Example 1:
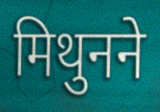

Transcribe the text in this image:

मिथुनने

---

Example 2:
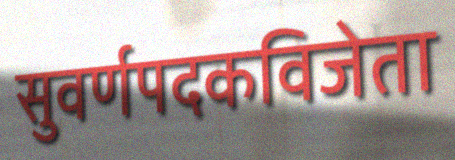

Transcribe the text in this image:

सुवर्णपदकविजेता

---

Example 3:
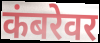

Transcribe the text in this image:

कंबरेवर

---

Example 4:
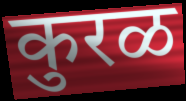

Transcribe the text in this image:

कुरळ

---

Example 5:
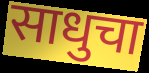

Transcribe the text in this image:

साधुचा